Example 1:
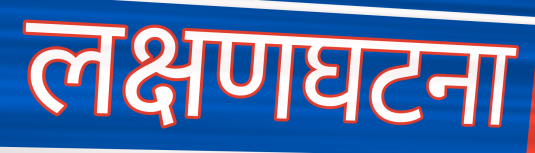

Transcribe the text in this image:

लक्षणघटना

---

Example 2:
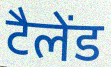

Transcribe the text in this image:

टैलेंड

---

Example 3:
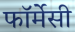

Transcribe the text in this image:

फॉर्मेसी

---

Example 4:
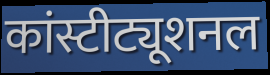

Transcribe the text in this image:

कांस्टीट्यूशनल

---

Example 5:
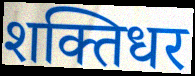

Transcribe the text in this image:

शक्तिधर